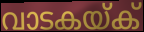
വാടകയ്ക്